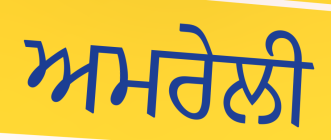
ਅਮਰੇਲੀ